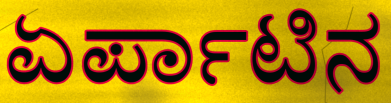
ಏರ್ಪಾಟಿನ